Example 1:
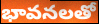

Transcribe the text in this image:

భావనలతో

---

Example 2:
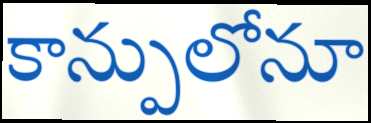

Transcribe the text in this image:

కాన్పులోనూ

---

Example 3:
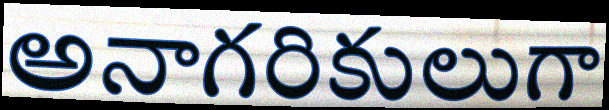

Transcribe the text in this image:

అనాగరికులుగా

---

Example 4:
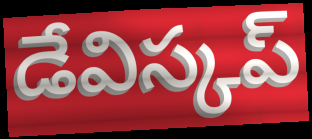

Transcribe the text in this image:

డేవిస్కప్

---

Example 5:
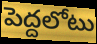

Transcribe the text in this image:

పెద్దలోటు